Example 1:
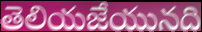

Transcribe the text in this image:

తెలియజేయునది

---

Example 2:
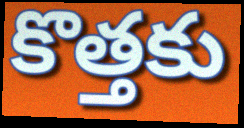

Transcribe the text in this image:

కొత్తకు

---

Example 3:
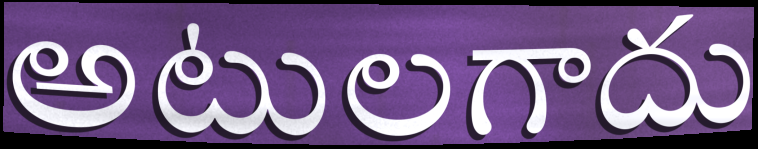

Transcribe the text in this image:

అటులగాదు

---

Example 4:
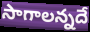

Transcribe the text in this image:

సాగాలన్నదే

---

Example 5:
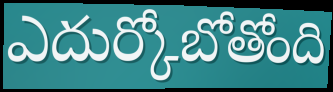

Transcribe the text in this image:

ఎదుర్కోబోతోంది